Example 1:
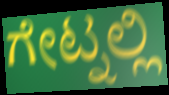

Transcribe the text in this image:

ಗೇಟ್ನಲ್ಲಿ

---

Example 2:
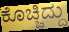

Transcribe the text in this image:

ಕೊಚ್ಚಿದ್ದು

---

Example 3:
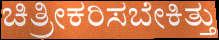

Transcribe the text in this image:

ಚಿತ್ರೀಕರಿಸಬೇಕಿತ್ತು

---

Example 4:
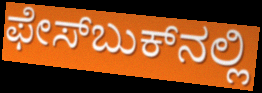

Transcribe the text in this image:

ಫೇಸ್‌ಬುಕ್‌ನಲ್ಲಿ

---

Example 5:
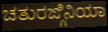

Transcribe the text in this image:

ಚತುರಙ್ಗಿನಿಯಾ